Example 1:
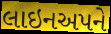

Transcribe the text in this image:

લાઇનઅપને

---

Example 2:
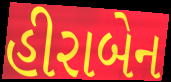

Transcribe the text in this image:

હીરાબેન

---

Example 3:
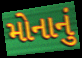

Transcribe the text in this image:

મોનાનું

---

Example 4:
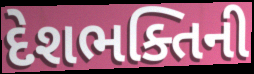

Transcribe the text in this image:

દેશભક્તિની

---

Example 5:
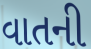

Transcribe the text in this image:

વાતની